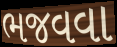
ભજવવા